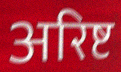
अरिष्ट